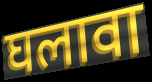
घलावा